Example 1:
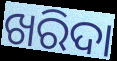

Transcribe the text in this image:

ଖରିଦା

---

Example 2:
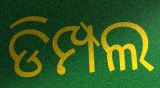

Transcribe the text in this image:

ଡିମ୍ପଲ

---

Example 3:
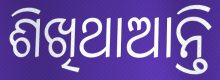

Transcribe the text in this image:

ଶିଖିଥାଆନ୍ତି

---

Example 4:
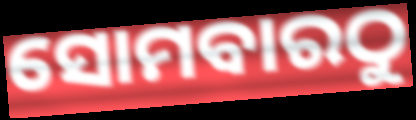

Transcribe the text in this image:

ସୋମବାରଠୁ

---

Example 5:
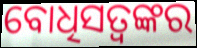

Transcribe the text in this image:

ବୋଧିସତ୍ୱଙ୍କର